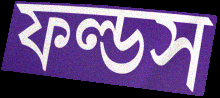
ফল্ডস